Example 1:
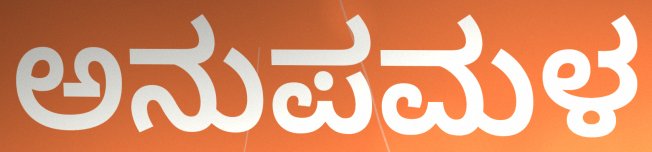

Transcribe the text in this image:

ಅನುಪಮಳ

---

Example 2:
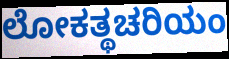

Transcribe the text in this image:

ಲೋಕತ್ಥಚರಿಯಂ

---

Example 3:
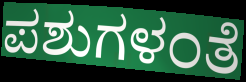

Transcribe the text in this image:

ಪಶುಗಳಂತೆ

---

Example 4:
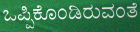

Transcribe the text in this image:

ಒಪ್ಪಿಕೊಂಡಿರುವಂತೆ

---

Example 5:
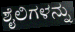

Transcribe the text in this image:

ಶೈಲಿಗಳನ್ನು